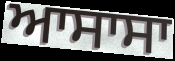
ਆਸਾਸਾ